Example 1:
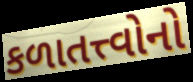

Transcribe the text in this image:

કળાતત્ત્વોનો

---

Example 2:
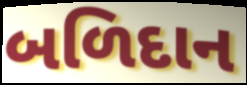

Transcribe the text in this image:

બળિદાન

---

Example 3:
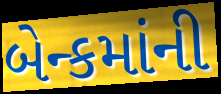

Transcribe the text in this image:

બેન્કમાંની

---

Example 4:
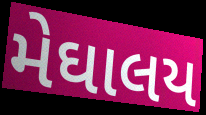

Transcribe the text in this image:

મેઘાલય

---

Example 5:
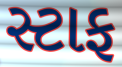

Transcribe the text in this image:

સ્ટાફ